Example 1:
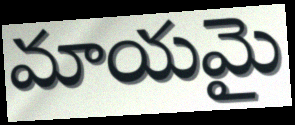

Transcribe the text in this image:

మాయమై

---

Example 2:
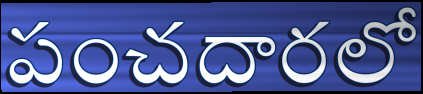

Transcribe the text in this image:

పంచదారలో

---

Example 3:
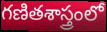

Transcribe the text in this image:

గణితశాస్త్రంలో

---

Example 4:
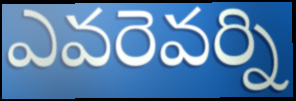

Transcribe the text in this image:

ఎవరెవర్ని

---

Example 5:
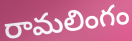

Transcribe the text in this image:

రామలింగం